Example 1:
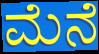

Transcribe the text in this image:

ಮೆನೆ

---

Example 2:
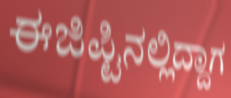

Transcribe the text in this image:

ಈಜಿಪ್ಟಿನಲ್ಲಿದ್ದಾಗ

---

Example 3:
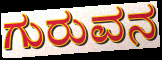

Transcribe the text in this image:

ಗುರುವನ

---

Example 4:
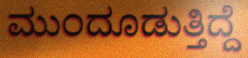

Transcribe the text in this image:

ಮುಂದೂಡುತ್ತಿದ್ದೆ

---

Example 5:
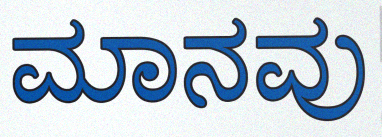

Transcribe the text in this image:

ಮಾನವು